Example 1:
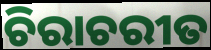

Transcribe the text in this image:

ଚିରାଚରୀତ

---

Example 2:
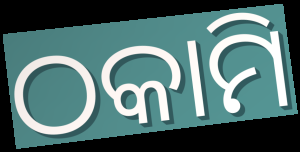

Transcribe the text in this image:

ଠକାମି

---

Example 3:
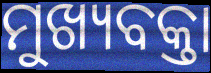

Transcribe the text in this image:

ମୁଖ୍ୟବକ୍ତା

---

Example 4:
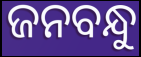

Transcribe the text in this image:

ଜନବନ୍ଧୁ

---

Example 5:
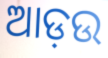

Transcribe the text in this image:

ଆଡ଼ଉ